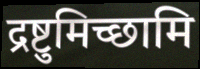
द्रष्टुमिच्छामि